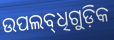
ଉପଲବ୍‌ଧିଗୁଡ଼ିକ